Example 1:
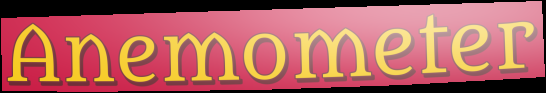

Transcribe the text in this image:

Anemometer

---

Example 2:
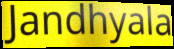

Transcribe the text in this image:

Jandhyala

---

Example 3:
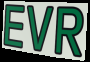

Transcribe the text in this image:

EVR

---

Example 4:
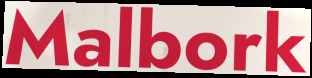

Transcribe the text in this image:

Malbork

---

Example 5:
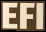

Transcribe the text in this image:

EFI